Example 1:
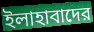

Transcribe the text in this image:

ইলাহাবাদের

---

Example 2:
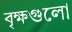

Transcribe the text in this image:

বৃক্ষগুলো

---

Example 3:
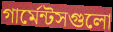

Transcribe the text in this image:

গার্মেন্টসগুলো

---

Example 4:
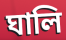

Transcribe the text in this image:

ঘালি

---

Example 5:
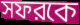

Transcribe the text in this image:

সফরকে